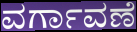
ವರ್ಗಾವಣೆ